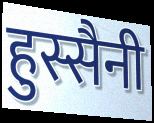
हुस्सैनी